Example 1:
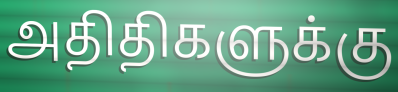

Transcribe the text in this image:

அதிதிகளுக்கு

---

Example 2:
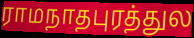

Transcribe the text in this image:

ராமநாதபுரத்துல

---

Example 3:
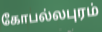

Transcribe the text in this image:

கோபல்லபுரம்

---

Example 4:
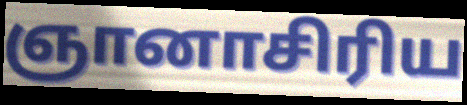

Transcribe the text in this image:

ஞானாசிரிய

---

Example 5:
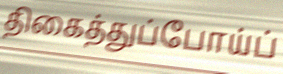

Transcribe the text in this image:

திகைத்துப்போய்ப்